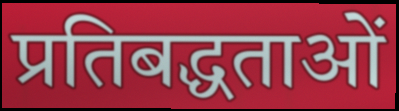
प्रतिबद्धताओं